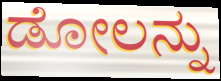
ಡೋಲನ್ನು